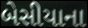
બેસીયાના